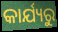
କାର୍ଯ୍ୟରୁ